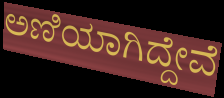
ಅಣಿಯಾಗಿದ್ದೇವೆ